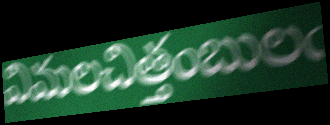
విమలచిత్తంబులఁ